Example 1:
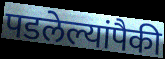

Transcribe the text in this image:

पडलेल्यांपैकी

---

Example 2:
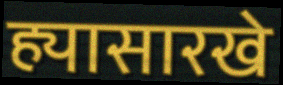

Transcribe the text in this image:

ह्यासारखे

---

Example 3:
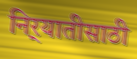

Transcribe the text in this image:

निर्यातीसाठी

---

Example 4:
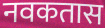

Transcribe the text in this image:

नवकतास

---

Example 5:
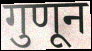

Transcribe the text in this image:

गुणून